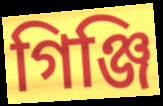
গিঞ্জি